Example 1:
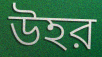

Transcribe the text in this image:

উহর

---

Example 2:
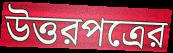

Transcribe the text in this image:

উত্তরপত্রের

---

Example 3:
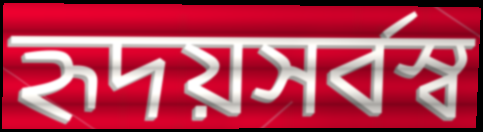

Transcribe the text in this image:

হৃদয়সর্বস্ব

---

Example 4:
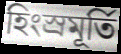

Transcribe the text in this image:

হিংস্রমূর্তি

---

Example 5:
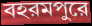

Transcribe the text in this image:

বহরমপুরে